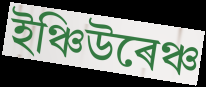
ইঞ্চিউৰেঞ্চ